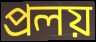
প্ৰলয়